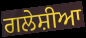
ਗਲੇਸ਼ੀਆ